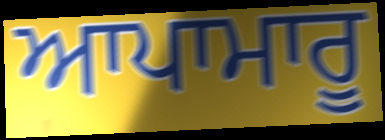
ਆਪਾਮਾਰੂ